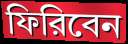
ফিরিবেন